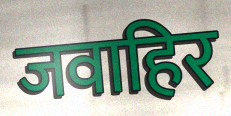
जवाहिर